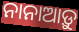
ନାନାଆଡ଼ୁ